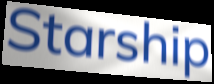
Starship